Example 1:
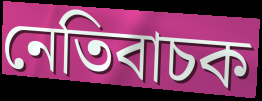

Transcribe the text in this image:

নেতিবাচক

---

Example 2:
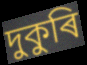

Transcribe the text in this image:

দুকুৰি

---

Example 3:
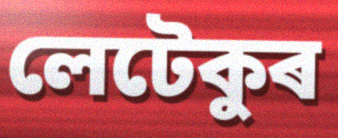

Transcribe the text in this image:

লেটেকুৰ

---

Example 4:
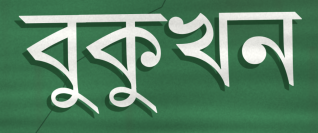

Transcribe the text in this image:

বুকুখন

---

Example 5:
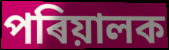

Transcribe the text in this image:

পৰিয়ালক